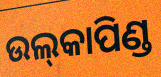
ଉଲ୍‌କାପିଣ୍ଡ